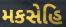
મકસેહિ